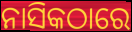
ନାସିକଠାରେ